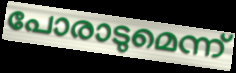
പോരാടുമെന്ന്